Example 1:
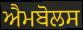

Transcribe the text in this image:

ਐਮਬੋਲਸ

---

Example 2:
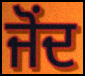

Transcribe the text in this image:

ਜੋਂਦ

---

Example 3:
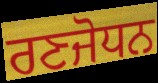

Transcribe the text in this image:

ਰਣਜੋਧਨ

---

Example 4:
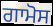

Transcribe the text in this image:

ਗਾਮੋਸ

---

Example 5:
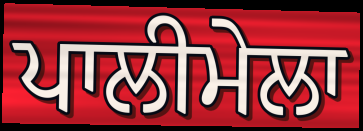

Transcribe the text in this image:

ਪਾਲੀਮੇਲਾ